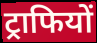
ट्राफियों